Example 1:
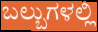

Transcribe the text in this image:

ಬಲ್ಬುಗಳಲ್ಲಿ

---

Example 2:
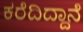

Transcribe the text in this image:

ಕರೆದಿದ್ದಾನೆ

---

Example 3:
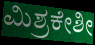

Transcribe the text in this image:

ಮಿಶ್ರಕೇಶೀ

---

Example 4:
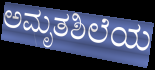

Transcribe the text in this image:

ಅಮೃತಶಿಲೆಯ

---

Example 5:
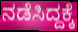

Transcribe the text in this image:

ನಡೆಸಿದ್ದಕ್ಕೆ